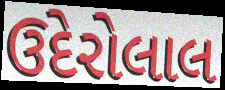
ઉદેરોલાલ